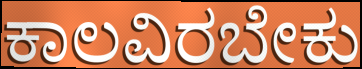
ಕಾಲವಿರಬೇಕು